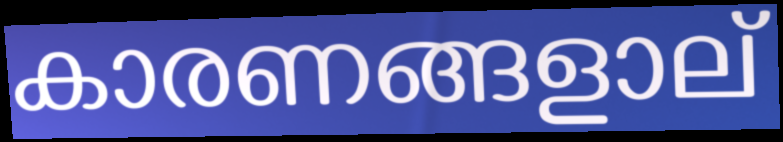
കാരണങ്ങളാല്